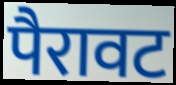
पैरावट